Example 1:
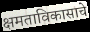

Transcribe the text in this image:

क्षमताविकासाचे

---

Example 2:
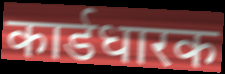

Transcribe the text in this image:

कार्डधारक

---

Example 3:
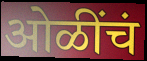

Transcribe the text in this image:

ओळींचं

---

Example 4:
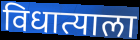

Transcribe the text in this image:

विधात्याला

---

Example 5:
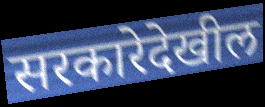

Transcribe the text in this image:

सरकारेदेखील